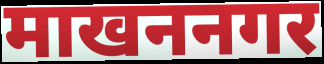
माखननगर